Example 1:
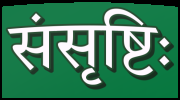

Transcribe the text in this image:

संसृष्टिः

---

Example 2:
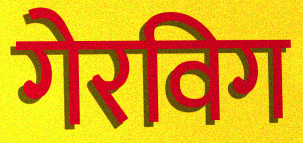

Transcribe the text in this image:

गेरविग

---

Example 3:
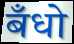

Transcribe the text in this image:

बँधो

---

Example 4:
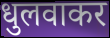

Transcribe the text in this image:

धुलवाकर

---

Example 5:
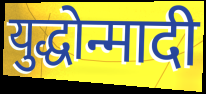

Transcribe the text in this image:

युद्धोन्मादी